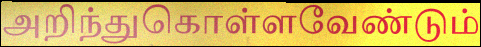
அறிந்துகொள்ளவேண்டும்